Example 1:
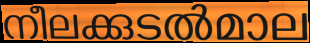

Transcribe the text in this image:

നീലക്കുടൽമാല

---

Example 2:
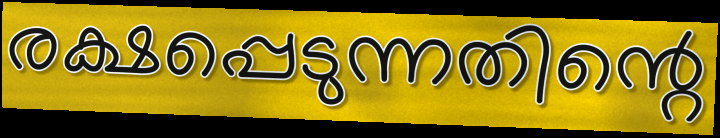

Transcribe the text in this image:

രക്ഷപ്പെടുന്നതിന്റെ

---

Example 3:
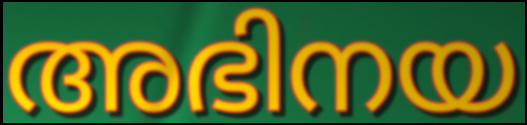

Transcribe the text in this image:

അഭിനയ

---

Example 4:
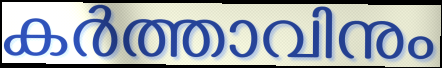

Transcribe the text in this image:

കർത്താവിനും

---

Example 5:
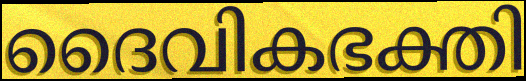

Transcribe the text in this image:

ദൈവികഭക്തി